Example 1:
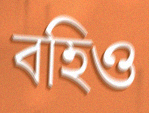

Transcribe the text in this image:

বহিও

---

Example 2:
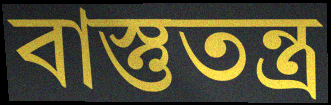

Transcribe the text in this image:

বাস্তুতন্ত্র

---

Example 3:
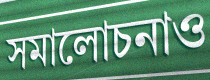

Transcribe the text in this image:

সমালোচনাও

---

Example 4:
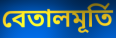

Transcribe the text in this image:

বেতালমূর্তি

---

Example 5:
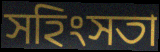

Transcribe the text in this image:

সহিংসতা